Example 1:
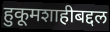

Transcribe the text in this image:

हुकूमशाहीबद्दल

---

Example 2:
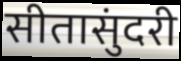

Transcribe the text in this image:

सीतासुंदरी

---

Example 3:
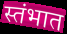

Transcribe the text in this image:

स्तंभात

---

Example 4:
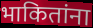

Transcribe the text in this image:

भाकितांना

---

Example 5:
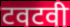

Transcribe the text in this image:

टवटवी